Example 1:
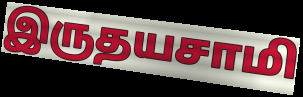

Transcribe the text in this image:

இருதயசாமி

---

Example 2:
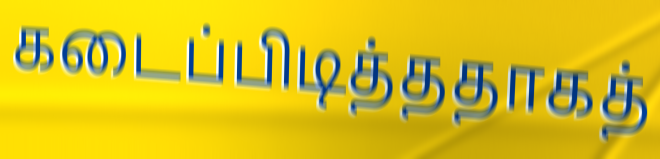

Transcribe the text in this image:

கடைப்பிடித்ததாகத்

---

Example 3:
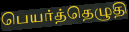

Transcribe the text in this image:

பெயர்த்தெழுதி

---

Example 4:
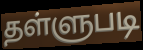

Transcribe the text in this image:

தள்ளுபடி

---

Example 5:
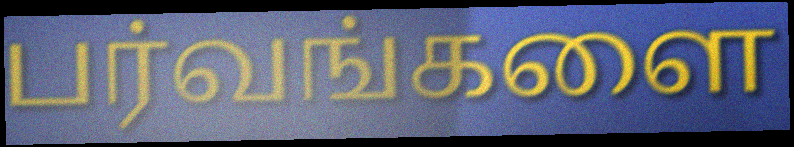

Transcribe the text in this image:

பர்வங்களை